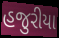
હજુરીયા